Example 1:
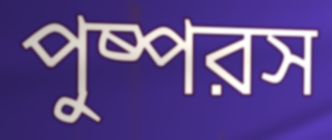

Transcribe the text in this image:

পুষ্পরস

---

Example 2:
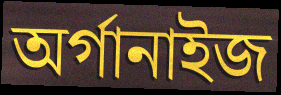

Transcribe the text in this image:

অর্গানাইজ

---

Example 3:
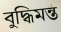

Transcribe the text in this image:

বুদ্ধিমন্ত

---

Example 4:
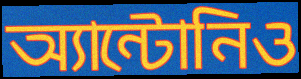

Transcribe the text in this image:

অ্যান্টোনিও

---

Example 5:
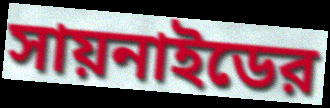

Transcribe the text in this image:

সায়নাইডের